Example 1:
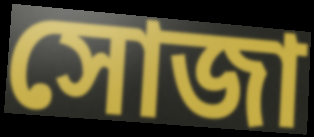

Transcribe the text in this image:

সোজা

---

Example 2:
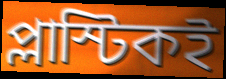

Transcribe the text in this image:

প্লাস্টিকই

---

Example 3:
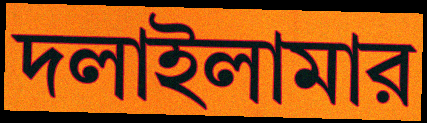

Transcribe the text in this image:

দলাইলামার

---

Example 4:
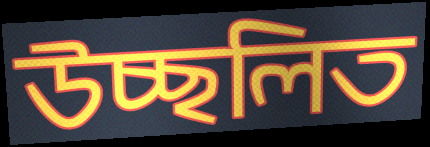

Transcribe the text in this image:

উচ্ছলিত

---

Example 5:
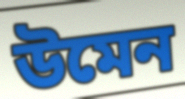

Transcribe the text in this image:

উমেন